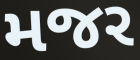
મજર